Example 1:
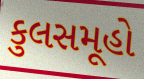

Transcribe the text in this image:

કુલસમૂહો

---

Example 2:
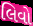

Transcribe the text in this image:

લિવો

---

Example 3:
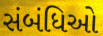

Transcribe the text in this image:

સંબંધિઓ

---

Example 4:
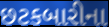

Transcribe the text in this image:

છટકબારીના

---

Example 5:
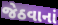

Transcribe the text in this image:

જેઠવાનાં